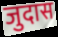
जुदास